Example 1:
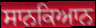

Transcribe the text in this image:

ਸਾਨਕਿਆਨ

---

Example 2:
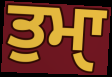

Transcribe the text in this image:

ਤੁਮਾੑ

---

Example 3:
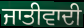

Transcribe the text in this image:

ਜਾਤੀਵਾਦੀ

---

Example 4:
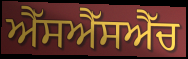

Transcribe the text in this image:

ਐੱਸਐੱਸਐੱਚ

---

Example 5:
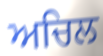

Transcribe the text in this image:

ਅਚਿਲ